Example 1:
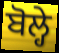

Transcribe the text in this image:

ਬੋਲ੍ਹੇ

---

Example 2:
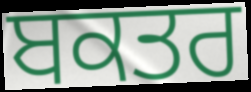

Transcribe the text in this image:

ਬਕਤਰ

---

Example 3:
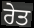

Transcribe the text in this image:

ਰੇਤ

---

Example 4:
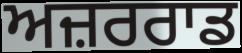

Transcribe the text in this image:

ਅਜ਼ਰਰਾਡ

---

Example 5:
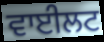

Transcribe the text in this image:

ਵਾਈਲਟ